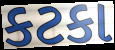
કટકા